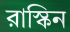
রাস্কিন